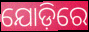
ଯୋଡ଼ିରେ